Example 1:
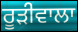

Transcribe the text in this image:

ਰੂਡ਼ੀਵਾਲਾ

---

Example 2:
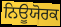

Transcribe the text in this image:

ਨਿਊਯੋਰਕ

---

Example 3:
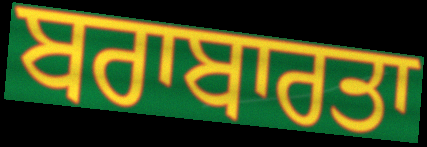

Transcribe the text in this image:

ਬਰਾਬਾਰਤਾ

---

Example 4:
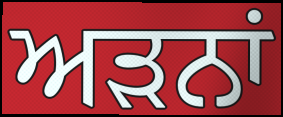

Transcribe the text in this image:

ਅੜਨਾਂ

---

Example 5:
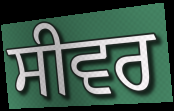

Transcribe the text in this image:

ਸੀਵਰ